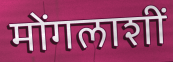
मोंगलाशीं